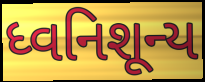
ધ્વનિશૂન્ય